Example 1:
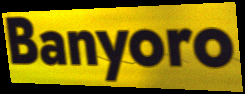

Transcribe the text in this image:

Banyoro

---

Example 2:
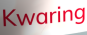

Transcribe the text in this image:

Kwaring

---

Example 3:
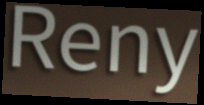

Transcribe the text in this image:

Reny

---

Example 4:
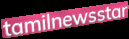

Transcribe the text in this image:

tamilnewsstar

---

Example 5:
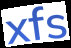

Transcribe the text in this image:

xfs